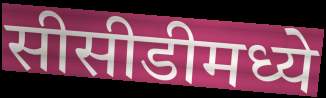
सीसीडीमध्ये